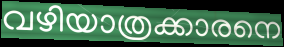
വഴിയാത്രക്കാരനെ